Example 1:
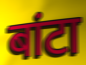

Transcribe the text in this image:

बांटा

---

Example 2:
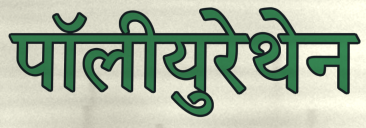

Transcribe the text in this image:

पॉलीयुरेथेन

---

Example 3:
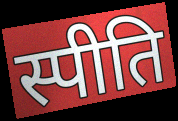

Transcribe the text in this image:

स्पीति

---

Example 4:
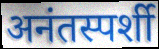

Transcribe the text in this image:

अनंतस्पर्शी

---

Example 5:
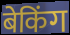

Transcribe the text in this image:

बेकिंग